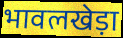
भावलखेड़ा